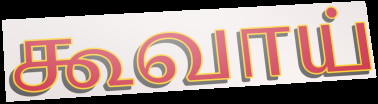
கூவாய்